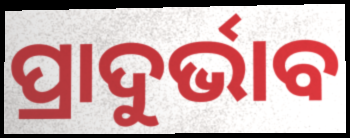
ପ୍ରାଦୁର୍ଭାବ